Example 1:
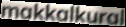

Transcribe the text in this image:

makkalkural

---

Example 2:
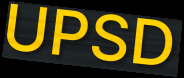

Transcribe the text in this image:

UPSD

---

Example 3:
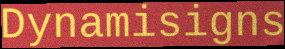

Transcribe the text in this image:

Dynamisigns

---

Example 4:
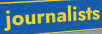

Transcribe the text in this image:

journalists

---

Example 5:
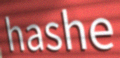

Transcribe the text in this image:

hashe